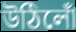
উঠিলোঁ